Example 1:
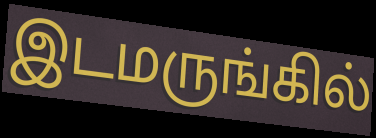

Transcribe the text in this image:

இடமருங்கில்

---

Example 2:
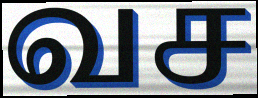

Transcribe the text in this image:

வச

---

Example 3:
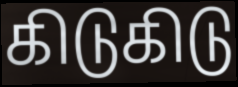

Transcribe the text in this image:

கிடுகிடு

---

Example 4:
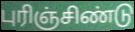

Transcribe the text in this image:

புரிஞ்சிண்டு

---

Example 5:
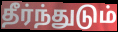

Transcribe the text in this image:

தீர்ந்துடும்